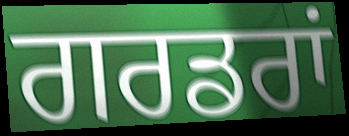
ਗਰਡਰਾਂ